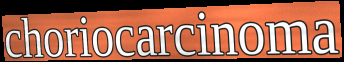
choriocarcinoma